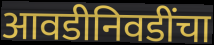
आवडीनिवडींचा